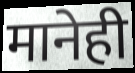
मानेही